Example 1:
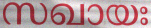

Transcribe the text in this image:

സഖായഃ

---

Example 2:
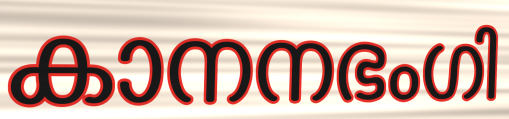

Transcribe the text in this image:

കാനനഭംഗി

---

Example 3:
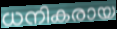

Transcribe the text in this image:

ധനികരായ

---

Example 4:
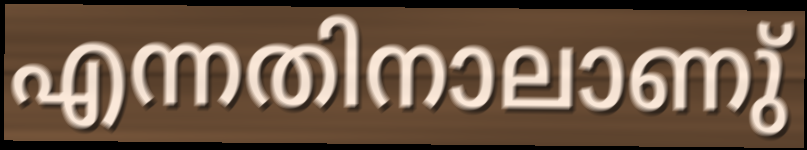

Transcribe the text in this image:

എന്നതിനാലാണു്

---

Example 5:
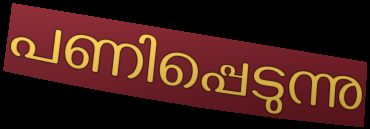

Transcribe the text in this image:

പണിപ്പെടുന്നു